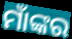
ମାଁଙ୍କର